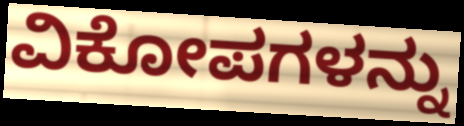
ವಿಕೋಪಗಳನ್ನು